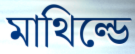
মাথিল্ডে